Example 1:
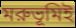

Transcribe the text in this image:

মরুভূমিই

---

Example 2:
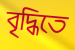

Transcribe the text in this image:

বৃদ্ধিতে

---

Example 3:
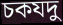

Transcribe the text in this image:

চকযদু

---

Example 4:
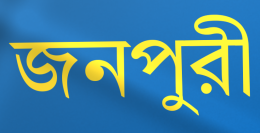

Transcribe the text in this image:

জনপুরী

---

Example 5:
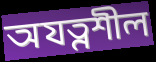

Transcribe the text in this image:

অযত্নশীল